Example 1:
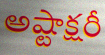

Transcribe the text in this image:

అష్టాక్షరీ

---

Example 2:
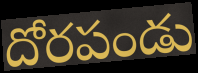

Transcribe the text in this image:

దోరపండు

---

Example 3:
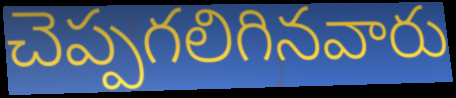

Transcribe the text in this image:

చెప్పగలిగినవారు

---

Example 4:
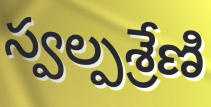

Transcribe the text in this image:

స్వల్పశ్రేణి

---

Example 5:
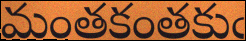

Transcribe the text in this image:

మంతకంతకుఁ